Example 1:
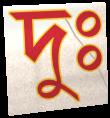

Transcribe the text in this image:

দুঃ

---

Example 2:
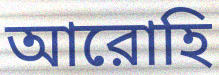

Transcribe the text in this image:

আরোহি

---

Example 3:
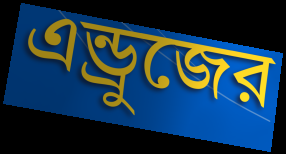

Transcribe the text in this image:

এন্ড্রুজের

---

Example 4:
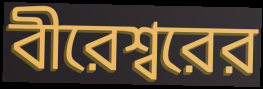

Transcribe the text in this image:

বীরেশ্বরের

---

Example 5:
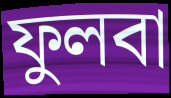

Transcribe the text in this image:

ফুলবা